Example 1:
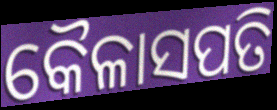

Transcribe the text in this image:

କୈଳାସପତି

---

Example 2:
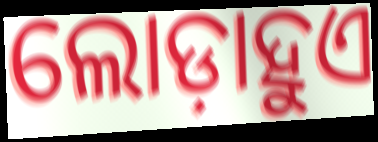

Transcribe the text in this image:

ଲୋଡ଼ାହୁଏ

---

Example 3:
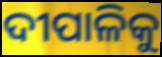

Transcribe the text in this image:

ଦୀପାଳିକୁ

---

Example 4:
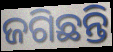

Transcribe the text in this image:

ଜଗିଛନ୍ତି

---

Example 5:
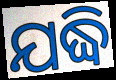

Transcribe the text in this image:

ଯଦ୍ଧି